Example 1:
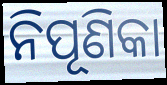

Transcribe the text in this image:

ନିପୂଣିକା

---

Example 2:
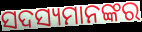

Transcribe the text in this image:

ସଦସ୍ୟମାନଙ୍କର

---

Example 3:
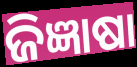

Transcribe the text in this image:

ଜିଜ୍ଞାଷା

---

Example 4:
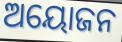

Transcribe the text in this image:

ଅୟୋଜନ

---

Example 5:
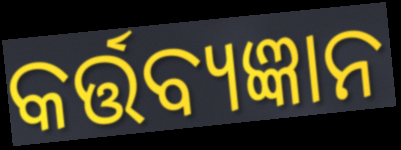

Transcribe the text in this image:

କର୍ତ୍ତବ୍ୟଜ୍ଞାନ